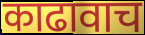
काढावाच